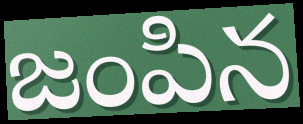
జంపిన